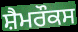
ਸ਼ੈਮਰੌਕਸ